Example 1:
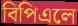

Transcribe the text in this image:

বিপিএলে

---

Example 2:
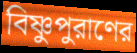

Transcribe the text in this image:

বিষ্ণুপুরাণের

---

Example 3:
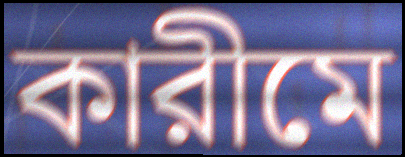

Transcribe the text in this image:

কারীমে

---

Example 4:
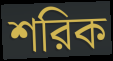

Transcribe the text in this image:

শরিক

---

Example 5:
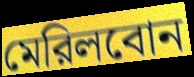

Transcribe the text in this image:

মেরিলবোন